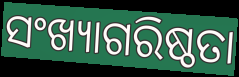
ସଂଖ୍ୟାଗରିଷ୍ଠତା